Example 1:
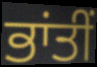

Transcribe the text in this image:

ਭਾਂਤੀਂ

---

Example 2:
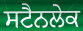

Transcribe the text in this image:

ਸਟੈਨਲੇਕ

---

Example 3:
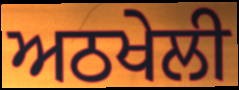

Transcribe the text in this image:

ਅਠਖੇਲੀ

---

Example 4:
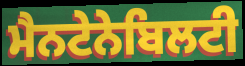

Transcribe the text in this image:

ਮੈਨਟੇਨੇਬਿਲਟੀ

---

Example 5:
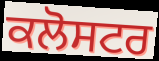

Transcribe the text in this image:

ਕਲੋਸਟਰ